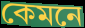
কেমনে